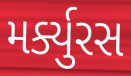
મર્ક્યુરસ